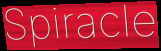
Spiracle